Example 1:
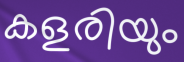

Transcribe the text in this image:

കളരിയും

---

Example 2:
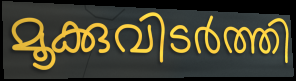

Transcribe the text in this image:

മൂക്കുവിടർത്തി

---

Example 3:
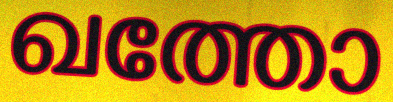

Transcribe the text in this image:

ഖത്തോ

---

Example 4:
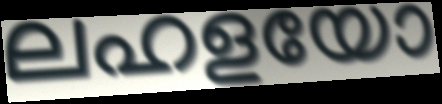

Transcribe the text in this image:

ലഹളയോ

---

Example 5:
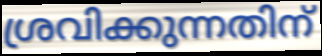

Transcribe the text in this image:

ശ്രവിക്കുന്നതിന്